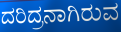
ದರಿದ್ರನಾಗಿರುವ